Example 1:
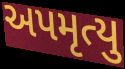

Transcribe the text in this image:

અપમૃત્યુ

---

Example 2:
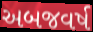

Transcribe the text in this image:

અબજવર્ષ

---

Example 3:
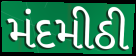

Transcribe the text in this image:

મંદમીઠી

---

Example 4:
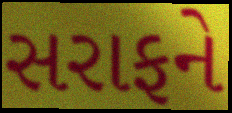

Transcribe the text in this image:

સરાફને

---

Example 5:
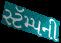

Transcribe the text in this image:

સ્ટૅમ્પની